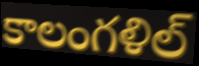
కాలంగళిల్